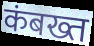
कंबख्त